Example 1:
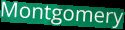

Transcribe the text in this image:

Montgomery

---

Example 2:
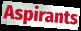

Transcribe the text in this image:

Aspirants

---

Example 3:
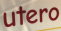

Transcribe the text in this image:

utero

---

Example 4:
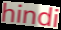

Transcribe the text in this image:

hindi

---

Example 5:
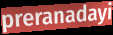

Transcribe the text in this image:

preranadayi